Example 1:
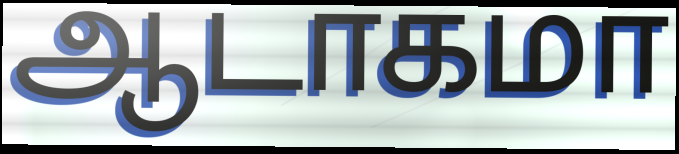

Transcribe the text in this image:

ஆடாகமா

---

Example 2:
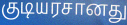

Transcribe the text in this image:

குடியரசானது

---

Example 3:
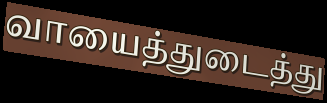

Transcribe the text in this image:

வாயைத்துடைத்து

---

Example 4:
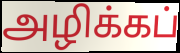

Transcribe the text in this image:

அழிக்கப்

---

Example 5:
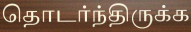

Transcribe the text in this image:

தொடர்ந்திருக்க